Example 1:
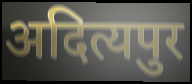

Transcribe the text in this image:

अदित्यपुर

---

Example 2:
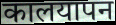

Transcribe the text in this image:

कालयापन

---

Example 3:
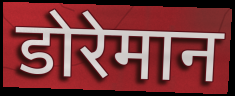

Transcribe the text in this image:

डोरेमान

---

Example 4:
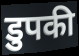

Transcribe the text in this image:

डुपकी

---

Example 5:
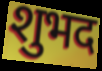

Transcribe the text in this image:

शुभद